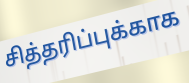
சித்தரிப்புக்காக